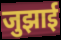
जुझाई